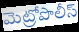
మెట్రోపొలీస్